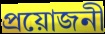
প্রয়োজনী